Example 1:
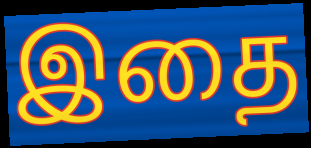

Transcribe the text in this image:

இதை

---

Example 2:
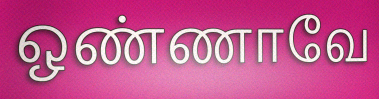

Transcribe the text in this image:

ஒண்ணாவே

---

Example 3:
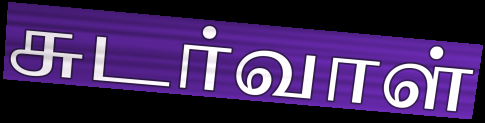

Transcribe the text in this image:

சுடர்வாள்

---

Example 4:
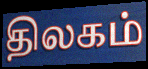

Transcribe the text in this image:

திலகம்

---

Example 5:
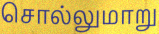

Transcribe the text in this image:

சொல்லுமாறு